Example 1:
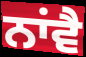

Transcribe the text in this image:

ਨਾਂਵੈ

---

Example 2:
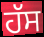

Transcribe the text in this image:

ਹੱਸ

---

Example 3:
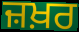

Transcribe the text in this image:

ਜ਼ਖ਼ਰ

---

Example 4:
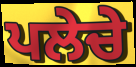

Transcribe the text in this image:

ਪਲੇਚੇ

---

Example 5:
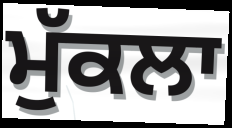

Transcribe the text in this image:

ਮੁੱਕਲਾ